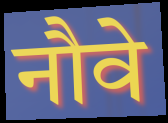
नौवे